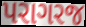
પરાગરજ